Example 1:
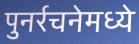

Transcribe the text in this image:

पुनर्रचनेमध्ये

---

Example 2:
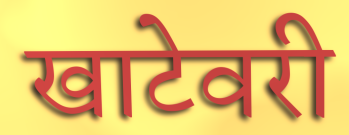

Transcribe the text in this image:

खाटेवरी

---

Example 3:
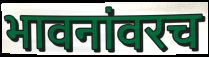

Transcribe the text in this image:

भावनांवरच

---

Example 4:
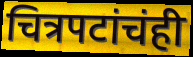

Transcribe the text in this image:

चित्रपटांचंही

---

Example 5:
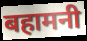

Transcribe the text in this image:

बहामनी